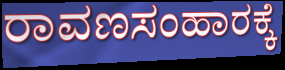
ರಾವಣಸಂಹಾರಕ್ಕೆ